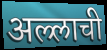
अल्लाची